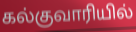
கல்குவாரியில்